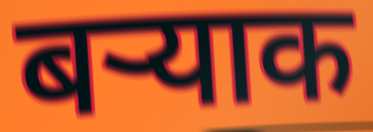
बऱ्याक